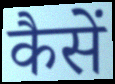
कैसें